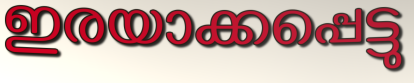
ഇരയാക്കപ്പെട്ടു